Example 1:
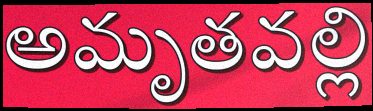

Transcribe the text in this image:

అమృతవల్లి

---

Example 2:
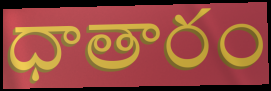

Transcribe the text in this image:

ధాతారం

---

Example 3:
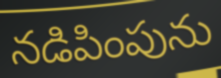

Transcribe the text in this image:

నడిపింపును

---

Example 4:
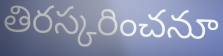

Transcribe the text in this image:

తిరస్కరించనూ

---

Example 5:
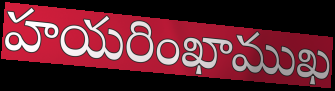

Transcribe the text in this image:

హయరింఖాముఖ